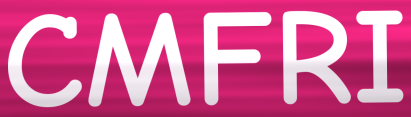
CMFRI